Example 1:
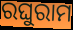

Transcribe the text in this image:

ରଘୁରାମ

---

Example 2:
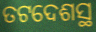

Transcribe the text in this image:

ତଟଦେଶସ୍ଥ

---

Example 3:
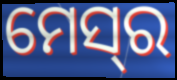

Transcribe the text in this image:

ମେସ୍‍ର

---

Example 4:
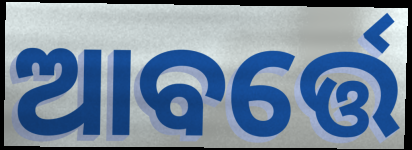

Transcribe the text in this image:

ଆବର୍ତ୍ତେ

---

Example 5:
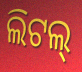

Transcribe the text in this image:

ଲିଟଲ୍